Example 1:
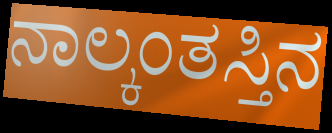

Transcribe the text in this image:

ನಾಲ್ಕಂತಸ್ತಿನ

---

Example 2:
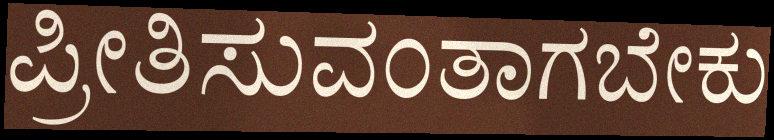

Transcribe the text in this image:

ಪ್ರೀತಿಸುವಂತಾಗಬೇಕು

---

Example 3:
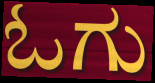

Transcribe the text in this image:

ಓಗು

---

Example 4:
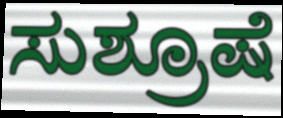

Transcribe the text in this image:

ಸುಶ್ರೂಷೆ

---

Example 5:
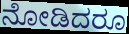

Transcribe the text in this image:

ನೋಡಿದರೂ